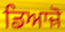
ਡਿਆਜ਼ੋ